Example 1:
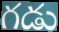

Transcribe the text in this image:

గడు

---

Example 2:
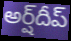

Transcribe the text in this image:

అర్ష్‌దీప్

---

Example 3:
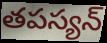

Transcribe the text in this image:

తపస్యన్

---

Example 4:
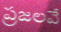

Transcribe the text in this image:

ప్రజలవే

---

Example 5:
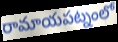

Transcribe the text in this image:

రామాయపట్నంలో